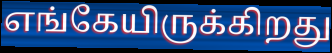
எங்கேயிருக்கிறது